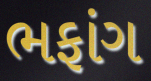
ભફાંગ